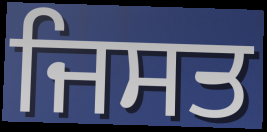
ਜਿਸਤ